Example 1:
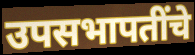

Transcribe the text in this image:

उपसभापतींचे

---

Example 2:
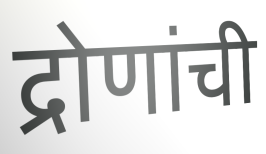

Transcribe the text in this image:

द्रोणांची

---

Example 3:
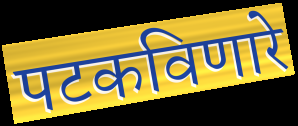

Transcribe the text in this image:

पटकविणारे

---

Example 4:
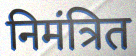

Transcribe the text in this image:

निमंत्रित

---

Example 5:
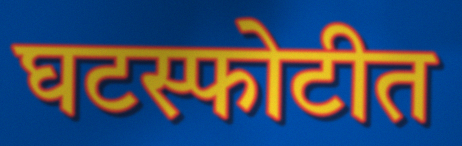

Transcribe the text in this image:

घटस्फोटीत